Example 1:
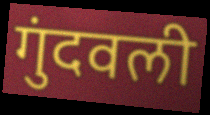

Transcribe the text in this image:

गुंदवली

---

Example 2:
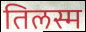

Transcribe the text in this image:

तिलस्म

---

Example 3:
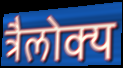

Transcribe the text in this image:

त्रैलोक्य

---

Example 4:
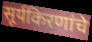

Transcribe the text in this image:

सूर्यकिरणांचे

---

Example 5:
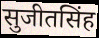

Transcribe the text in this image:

सुजीतसिंह